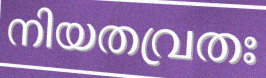
നിയതവ്രതഃ